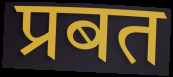
प्रबत